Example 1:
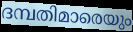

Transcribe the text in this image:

ദമ്പതിമാരെയും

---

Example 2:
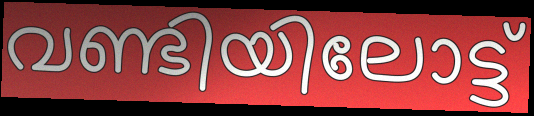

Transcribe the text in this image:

വണ്ടിയിലോട്ട്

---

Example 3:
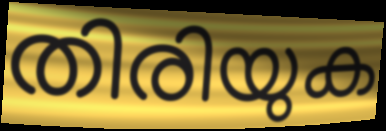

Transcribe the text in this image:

തിരിയുക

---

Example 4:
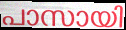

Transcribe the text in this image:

പാസായി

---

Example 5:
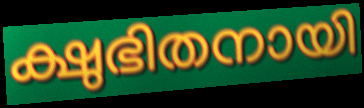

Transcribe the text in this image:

ക്ഷുഭിതനായി